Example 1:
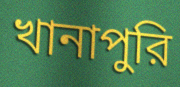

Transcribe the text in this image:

খানাপুরি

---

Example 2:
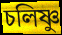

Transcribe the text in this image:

চলিষ্ণু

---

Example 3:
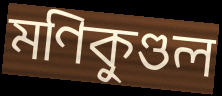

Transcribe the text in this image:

মণিকুণ্ডল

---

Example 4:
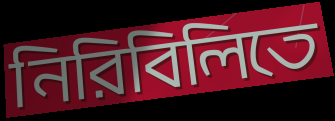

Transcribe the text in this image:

নিরিবিলিতে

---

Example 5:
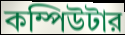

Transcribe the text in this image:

কম্পিউটার